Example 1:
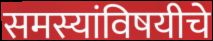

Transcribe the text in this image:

समस्यांविषयीचे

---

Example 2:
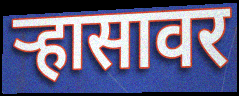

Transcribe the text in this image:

ऱ्हासावर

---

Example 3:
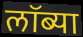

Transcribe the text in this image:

लॉब्या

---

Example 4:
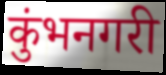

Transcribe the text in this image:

कुंभनगरी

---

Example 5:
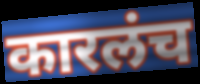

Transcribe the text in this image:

कारलंच